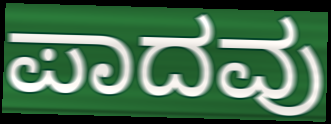
ಪಾದವು